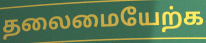
தலைமையேற்க